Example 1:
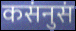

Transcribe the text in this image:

कसंनुसं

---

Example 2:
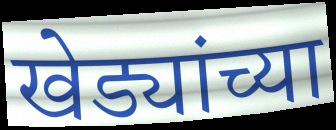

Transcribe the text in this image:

खेड्यांच्या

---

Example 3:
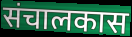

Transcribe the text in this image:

संचालकास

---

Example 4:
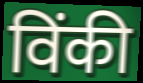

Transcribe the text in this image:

विंकी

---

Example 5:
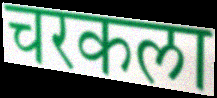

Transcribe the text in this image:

चरकला